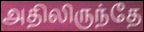
அதிலிருந்தே